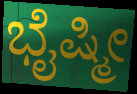
ಭೈಷ್ಮೀ